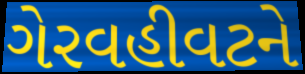
ગેરવહીવટને